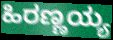
ಹಿರಣ್ಣಯ್ಯ